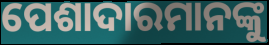
ପେଶାଦାରମାନଙ୍କୁ